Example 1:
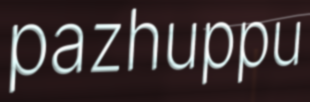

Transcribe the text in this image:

pazhuppu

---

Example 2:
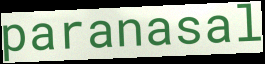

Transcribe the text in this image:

paranasal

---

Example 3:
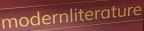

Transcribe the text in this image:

modernliterature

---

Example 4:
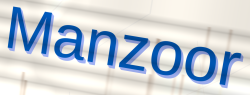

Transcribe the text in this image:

Manzoor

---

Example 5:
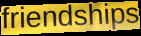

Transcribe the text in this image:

friendships